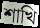
শাখি